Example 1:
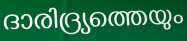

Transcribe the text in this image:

ദാരിദ്ര്യത്തെയും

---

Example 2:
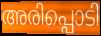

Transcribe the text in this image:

അരിപ്പൊടി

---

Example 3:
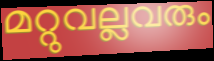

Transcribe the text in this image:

മറ്റുവല്ലവരും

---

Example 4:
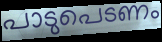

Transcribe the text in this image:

പാടുപെടണം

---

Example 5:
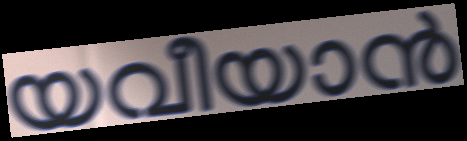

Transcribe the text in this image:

യവീയാൻ